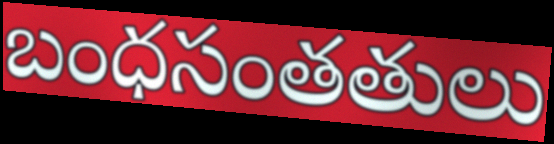
బంధసంతతులు